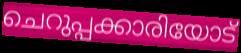
ചെറുപ്പക്കാരിയോട്